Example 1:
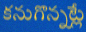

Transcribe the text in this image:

కనుగొన్నట్లే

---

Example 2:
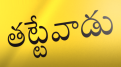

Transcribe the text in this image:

తట్టేవాడు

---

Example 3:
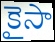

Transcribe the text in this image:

కైసా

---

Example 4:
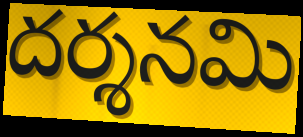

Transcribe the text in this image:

దర్శనమి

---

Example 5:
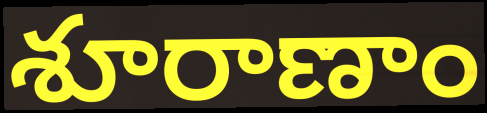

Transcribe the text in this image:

శూరాణాం